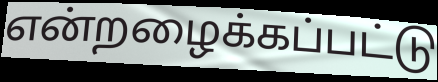
என்றழைக்கப்பட்டு